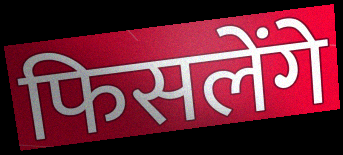
फिसलेंगे